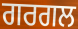
ਗਰਗਲ